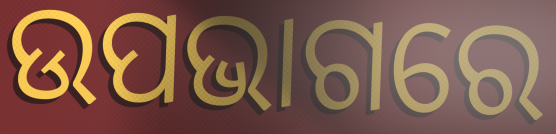
ଉପଭାଗରେ